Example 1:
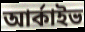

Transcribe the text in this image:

আর্কাইভ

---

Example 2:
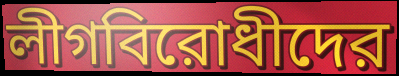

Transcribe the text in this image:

লীগবিরোধীদের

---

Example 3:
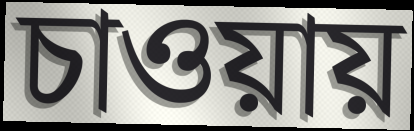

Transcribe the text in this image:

চাওয়ায়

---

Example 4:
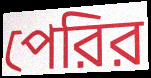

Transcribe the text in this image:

পেরির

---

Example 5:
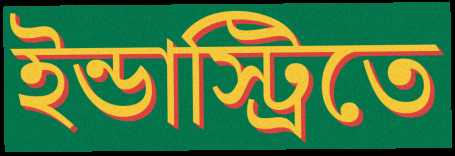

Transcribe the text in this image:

ইন্ডাস্ট্রিতে